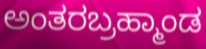
ಅಂತರಬ್ರಹ್ಮಾಂಡ